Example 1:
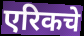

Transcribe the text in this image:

एरिकचे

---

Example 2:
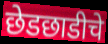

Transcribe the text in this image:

छेडछाडीचे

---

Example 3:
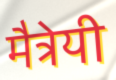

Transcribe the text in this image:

मैत्रेयी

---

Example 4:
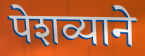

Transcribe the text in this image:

पेशव्याने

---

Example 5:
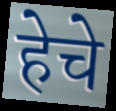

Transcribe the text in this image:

हेचे